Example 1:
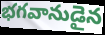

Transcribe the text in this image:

భగవానుడైన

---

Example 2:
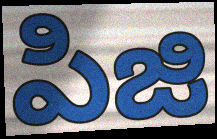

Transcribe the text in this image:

పిజి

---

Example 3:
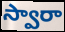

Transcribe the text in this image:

స్వారా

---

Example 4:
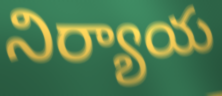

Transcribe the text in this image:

నిర్యాయ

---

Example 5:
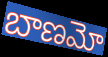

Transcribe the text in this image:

బాణమో